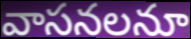
వాసనలనూ